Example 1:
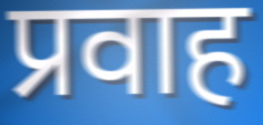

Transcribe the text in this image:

प्रवाह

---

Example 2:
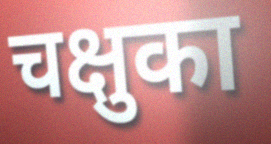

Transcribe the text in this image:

चक्षुका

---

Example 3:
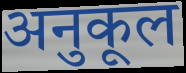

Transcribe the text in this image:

अनुकूल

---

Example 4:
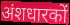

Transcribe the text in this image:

अंशधारकों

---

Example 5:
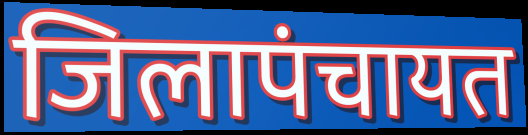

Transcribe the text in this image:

जिलापंचायत